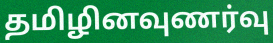
தமிழினவுணர்வு